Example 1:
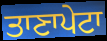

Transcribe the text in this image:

ਤਾਣਾਪੇਟਾ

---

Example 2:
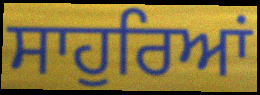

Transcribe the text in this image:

ਸਾਹੁਰਿਆਂ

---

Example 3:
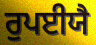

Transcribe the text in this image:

ਰੁਪਈਯੈ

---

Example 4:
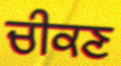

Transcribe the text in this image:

ਚੀਕਣ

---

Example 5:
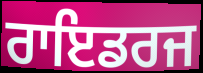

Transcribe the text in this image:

ਰਾਇਡਰਜ